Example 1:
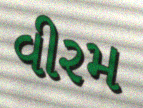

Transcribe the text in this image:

વીરમ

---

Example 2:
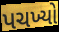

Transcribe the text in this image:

પચખ્યો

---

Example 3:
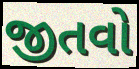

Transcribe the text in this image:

જીતવો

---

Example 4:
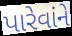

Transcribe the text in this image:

પારેવાંને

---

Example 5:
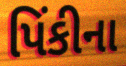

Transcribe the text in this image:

પિંકીના